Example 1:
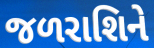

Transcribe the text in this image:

જળરાશિને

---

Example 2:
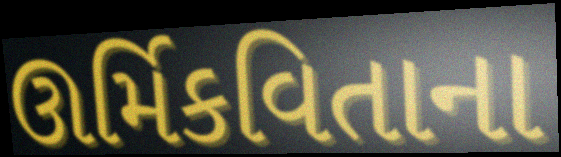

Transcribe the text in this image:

ઊર્મિકવિતાના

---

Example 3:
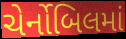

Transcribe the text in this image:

ચેર્નોબિલમાં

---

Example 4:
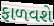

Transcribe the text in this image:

ફાળવશે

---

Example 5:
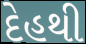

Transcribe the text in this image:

દેહથી